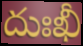
దుఃఖీ